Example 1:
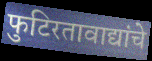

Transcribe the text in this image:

फुटिरतावाद्यांचे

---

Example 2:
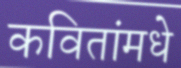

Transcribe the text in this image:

कवितांमधे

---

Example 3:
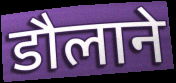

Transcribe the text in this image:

डौलाने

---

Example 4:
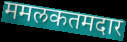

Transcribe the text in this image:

ममलकतमदार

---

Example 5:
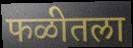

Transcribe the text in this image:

फळीतला